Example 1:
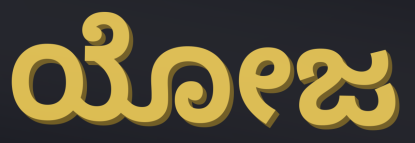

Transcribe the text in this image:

ಯೋಜ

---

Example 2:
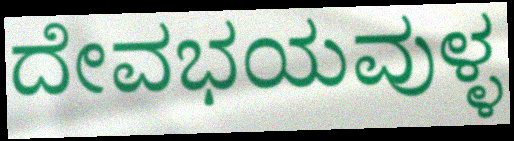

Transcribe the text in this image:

ದೇವಭಯವುಳ್ಳ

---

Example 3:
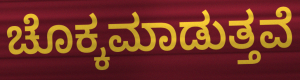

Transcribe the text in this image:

ಚೊಕ್ಕಮಾಡುತ್ತವೆ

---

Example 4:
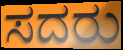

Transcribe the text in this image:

ಸದರು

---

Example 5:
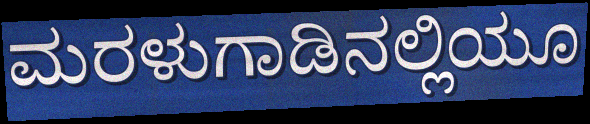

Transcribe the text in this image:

ಮರಳುಗಾಡಿನಲ್ಲಿಯೂ